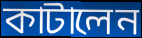
কাটালেন